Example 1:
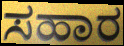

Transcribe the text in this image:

ಸಹಾರ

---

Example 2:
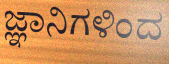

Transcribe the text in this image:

ಜ್ಞಾನಿಗಳಿಂದ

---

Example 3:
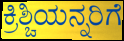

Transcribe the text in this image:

ಕ್ರಿಶ್ಚಿಯನ್ನರಿಗೆ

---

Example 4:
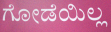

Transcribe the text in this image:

ಗೋಡೆಯಿಲ್ಲ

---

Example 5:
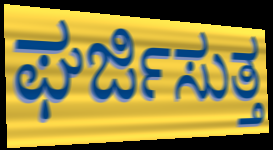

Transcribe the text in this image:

ಘರ್ಜಿಸುತ್ತ